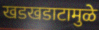
खडखडाटामुळे